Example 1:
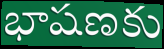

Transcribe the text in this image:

భాషణకు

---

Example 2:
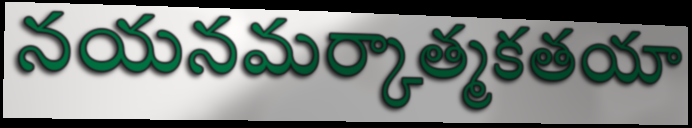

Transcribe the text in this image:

నయనమర్కాత్మకతయా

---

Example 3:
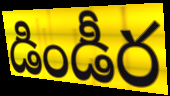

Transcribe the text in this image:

డిండీర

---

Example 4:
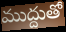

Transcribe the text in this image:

ముద్దుతో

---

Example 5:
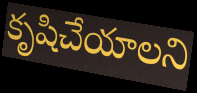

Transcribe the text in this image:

కృషిచేయాలని